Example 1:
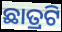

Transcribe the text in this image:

ଛାତ୍ରଟି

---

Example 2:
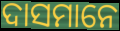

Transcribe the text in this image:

ଦାସମାନେ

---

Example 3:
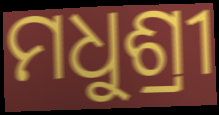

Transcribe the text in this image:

ମଧୁଶ୍ରୀ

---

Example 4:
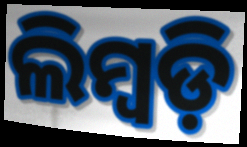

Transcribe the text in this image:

ଲିମ୍ବଡ଼ି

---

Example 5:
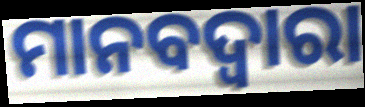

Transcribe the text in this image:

ମାନବଦ୍ୱାରା